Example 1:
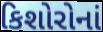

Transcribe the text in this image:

કિશોરોનાં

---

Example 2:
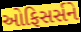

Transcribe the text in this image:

ઓફિસર્સને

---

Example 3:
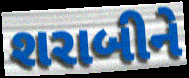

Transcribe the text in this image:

શરાબીને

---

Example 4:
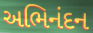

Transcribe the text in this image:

અભિનંદન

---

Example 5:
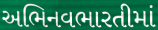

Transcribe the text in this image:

અભિનવભારતીમાં